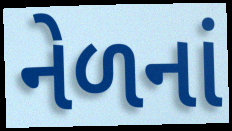
નેળનાં